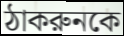
ঠাকরুনকে